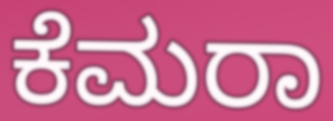
ಕೆಮರಾ